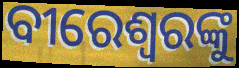
ବୀରେଶ୍ୱରଙ୍କୁ